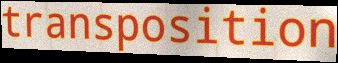
transposition